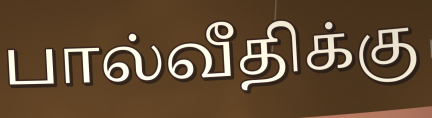
பால்வீதிக்கு